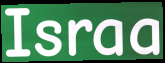
Israa